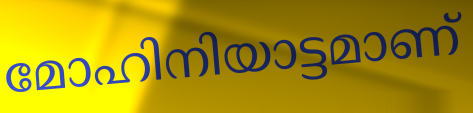
മോഹിനിയാട്ടമാണ്